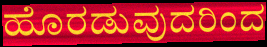
ಹೊರಡುವುದರಿಂದ